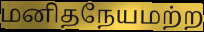
மனிதநேயமற்ற